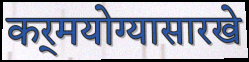
कर्मयोग्यासारखे